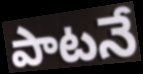
పాటనే